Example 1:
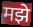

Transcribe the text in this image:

मझे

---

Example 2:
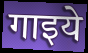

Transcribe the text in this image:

गाइये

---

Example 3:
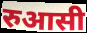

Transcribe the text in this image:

रुआसी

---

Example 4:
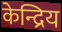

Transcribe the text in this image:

केन्द्रिय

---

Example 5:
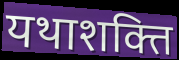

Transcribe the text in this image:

यथाशक्ति